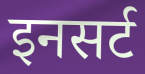
इनसर्ट